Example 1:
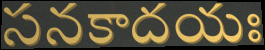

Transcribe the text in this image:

సనకాదయః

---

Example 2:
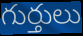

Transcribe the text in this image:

గుర్తులు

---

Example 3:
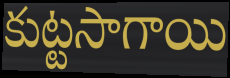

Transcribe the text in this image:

కుట్టసాగాయి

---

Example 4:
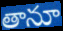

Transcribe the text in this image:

తానూ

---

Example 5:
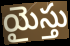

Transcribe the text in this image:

యైస్తు